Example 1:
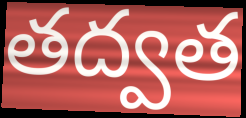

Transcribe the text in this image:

తద్వత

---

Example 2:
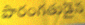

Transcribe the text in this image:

పారంగతుడైన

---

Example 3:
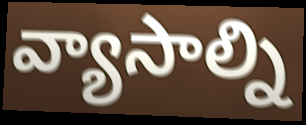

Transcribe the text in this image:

వ్యాసాల్ని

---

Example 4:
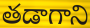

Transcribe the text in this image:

తడాగాని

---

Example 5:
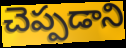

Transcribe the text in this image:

చెప్పడాని